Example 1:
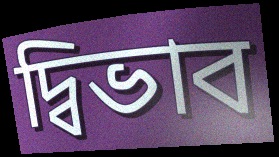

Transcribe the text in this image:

দ্বিভাব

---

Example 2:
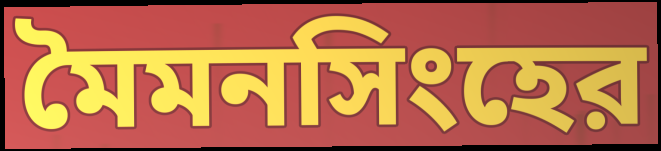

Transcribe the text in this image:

মৈমনসিংহের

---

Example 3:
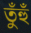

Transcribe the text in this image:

তুঁহুঁ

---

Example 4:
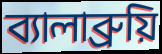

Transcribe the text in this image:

ব্যালাব্রুয়ি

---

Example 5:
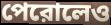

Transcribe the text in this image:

পেরোলেও